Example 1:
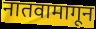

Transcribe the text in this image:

नातवामागून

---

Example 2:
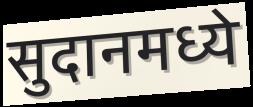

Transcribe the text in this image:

सुदानमध्ये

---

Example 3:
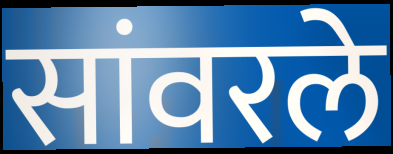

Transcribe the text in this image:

सांवरले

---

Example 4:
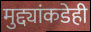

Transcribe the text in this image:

मुद्द्यांकडेही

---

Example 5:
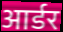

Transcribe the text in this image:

आर्डर